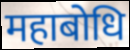
महाबोधि